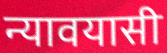
न्यावयासी